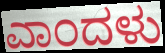
ಎಾಂದಳು